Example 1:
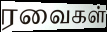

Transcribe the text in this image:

ரவைகள்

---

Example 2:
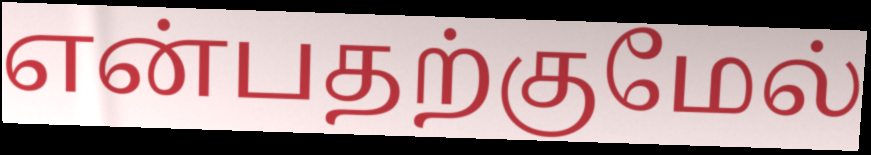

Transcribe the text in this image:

என்பதற்குமேல்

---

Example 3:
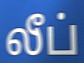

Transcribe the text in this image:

லீப்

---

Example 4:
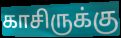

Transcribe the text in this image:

காசிருக்கு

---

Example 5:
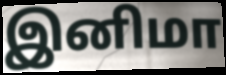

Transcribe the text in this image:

இனிமா